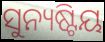
ସୁନ୍ୟଷ୍ଟିୟ